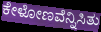
ಕೇಳೋಣವೆನ್ನಿಸಿತು